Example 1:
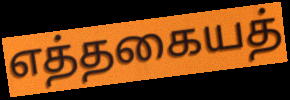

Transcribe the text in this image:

எத்தகையத்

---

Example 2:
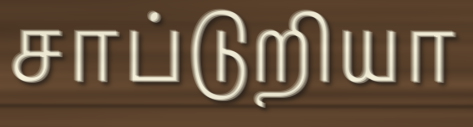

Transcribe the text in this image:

சாப்டுறியா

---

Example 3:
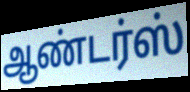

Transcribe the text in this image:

ஆண்டர்ஸ்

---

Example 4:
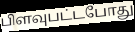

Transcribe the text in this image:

பிளவுபட்டபோது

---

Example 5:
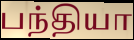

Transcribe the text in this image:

பந்தியா